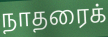
நாதரைக்